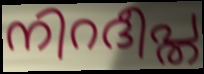
നിറദീപ്ത